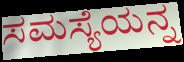
ಸಮಸ್ಯೆಯನ್ನ